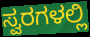
ಸ್ವರಗಳಲ್ಲಿ